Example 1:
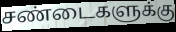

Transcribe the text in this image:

சண்டைகளுக்கு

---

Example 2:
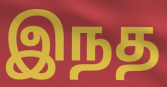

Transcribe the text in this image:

இநத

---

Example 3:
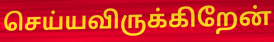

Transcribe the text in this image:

செய்யவிருக்கிறேன்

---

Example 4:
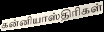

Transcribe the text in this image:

கன்னியாஸ்திரிகள்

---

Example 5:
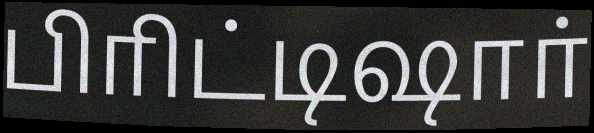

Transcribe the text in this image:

பிரிட்டிஷார்